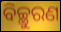
ବିଚ୍ଛୁରଣ